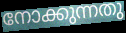
നോക്കുന്നതു